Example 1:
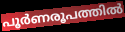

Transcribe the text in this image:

പൂർണരൂപത്തിൽ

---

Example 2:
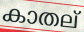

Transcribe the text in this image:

കാതല്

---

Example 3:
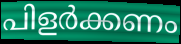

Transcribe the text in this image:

പിളർക്കണം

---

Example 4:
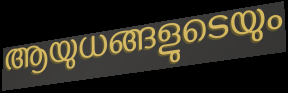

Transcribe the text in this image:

ആയുധങ്ങളുടെയും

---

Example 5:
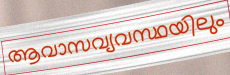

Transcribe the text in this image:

ആവാസവ്യവസ്ഥയിലും